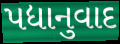
પદ્યાનુવાદ